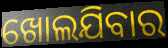
ଖୋଲଯିବାର